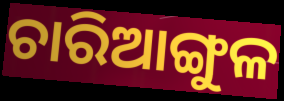
ଚାରିଆଙ୍ଗୁଳ